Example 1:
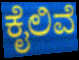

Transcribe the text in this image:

ಕೈಲಿವೆ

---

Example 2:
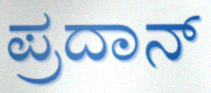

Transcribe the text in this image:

ಪ್ರದಾನ್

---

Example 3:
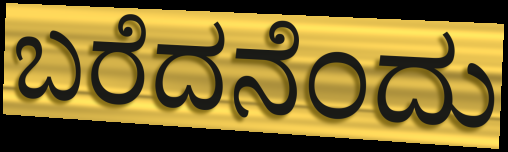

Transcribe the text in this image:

ಬರೆದನೆಂದು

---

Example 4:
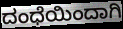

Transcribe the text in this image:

ದಂಧೆಯಿಂದಾಗಿ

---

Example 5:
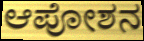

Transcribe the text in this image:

ಆಪೋಶನ